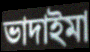
ভাদাইমা